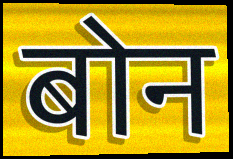
बोन